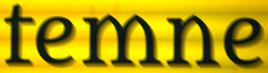
temne